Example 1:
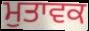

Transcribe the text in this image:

ਮੁਤਾਵਕ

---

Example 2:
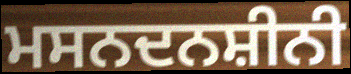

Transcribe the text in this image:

ਮਸਨਦਨਸ਼ੀਨੀ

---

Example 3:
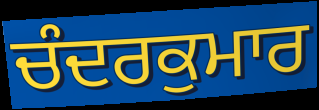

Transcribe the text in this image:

ਚੰਦਰਕੁਮਾਰ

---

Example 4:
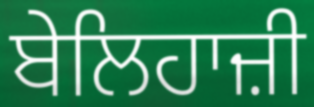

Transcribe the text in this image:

ਬੇਲਿਹਾਜ਼ੀ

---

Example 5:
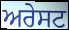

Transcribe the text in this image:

ਅਰੇਸਟ